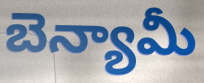
బెన్యామీ